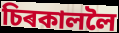
চিৰকাললৈ